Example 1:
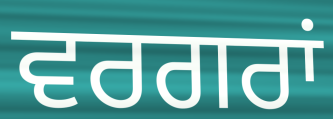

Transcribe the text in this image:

ਵਰਗਰਾਂ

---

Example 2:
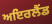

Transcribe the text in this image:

ਅਇਰਲੈਂਡ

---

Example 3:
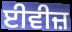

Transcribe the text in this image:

ਈਵੀਜ਼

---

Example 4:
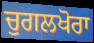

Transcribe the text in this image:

ਚੁਗਲਖੋਰਾ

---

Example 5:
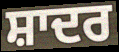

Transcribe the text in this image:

ਸ਼ਾਦਰ